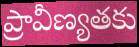
ప్రావీణ్యతకు